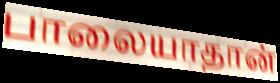
பாலையாதான்